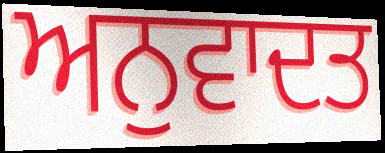
ਅਨੁਵਾਦਤ